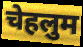
चेहलुम